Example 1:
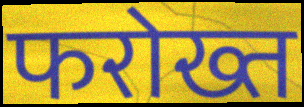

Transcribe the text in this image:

फरोख्त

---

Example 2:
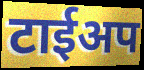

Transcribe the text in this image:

टाईअप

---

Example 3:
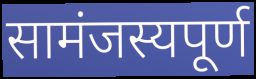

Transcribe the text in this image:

सामंजस्यपूर्ण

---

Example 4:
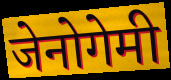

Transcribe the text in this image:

जेनोगेमी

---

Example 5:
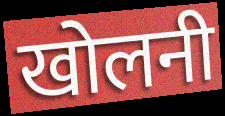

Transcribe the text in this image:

खोलनी